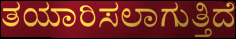
ತಯಾರಿಸಲಾಗುತ್ತಿದೆ